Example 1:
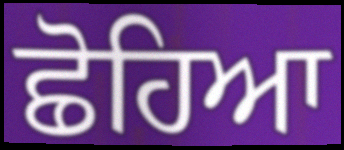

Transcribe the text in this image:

ਛੋਹਿਆ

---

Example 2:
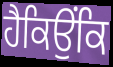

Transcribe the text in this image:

ਹੈਕਿਉਂਕਿ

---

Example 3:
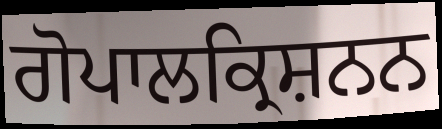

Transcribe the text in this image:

ਗੋਪਾਲਕ੍ਰਿਸ਼ਨਨ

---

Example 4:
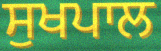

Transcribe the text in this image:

ਸੁਖਪਾਲ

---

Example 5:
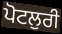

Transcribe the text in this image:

ਪੋਟਲੁਰੀ